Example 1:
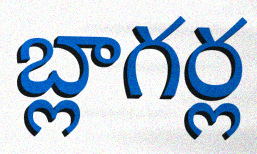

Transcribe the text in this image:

బ్లాగర్ల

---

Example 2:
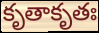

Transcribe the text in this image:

కృతాకృతః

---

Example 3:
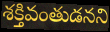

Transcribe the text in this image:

శక్తివంతుడనని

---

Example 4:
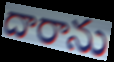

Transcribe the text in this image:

దారాను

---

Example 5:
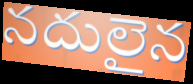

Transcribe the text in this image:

నదులైన